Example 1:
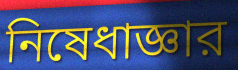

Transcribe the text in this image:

নিষেধাজ্ঞার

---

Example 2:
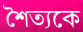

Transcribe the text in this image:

শৈত্যকে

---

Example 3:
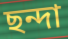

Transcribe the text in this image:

ছন্দা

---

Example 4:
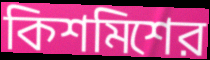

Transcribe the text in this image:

কিশমিশের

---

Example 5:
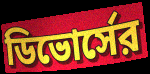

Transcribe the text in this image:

ডিভোর্সের